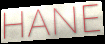
HANE